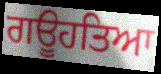
ਗਊਹਤਿਆ